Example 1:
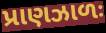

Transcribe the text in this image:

પ્રાણઝાળઃ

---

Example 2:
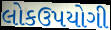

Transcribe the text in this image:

લોકઉપયોગી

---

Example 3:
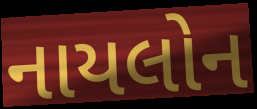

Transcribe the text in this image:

નાયલોન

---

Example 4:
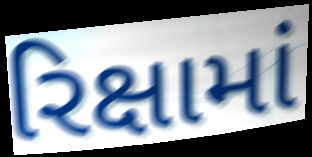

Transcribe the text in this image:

રિક્ષામાં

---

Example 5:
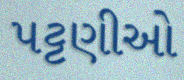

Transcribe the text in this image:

પટ્ટણીઓ